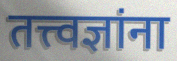
तत्त्वज्ञांना